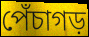
পেঁচাগড়